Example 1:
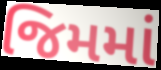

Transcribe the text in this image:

જિમમાં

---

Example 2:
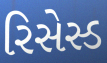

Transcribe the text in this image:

રિસેસ્ડ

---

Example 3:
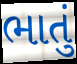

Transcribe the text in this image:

ભાતું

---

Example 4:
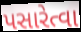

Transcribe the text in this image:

પસારેત્વા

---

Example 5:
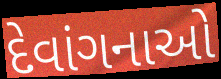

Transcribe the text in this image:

દેવાંગનાઓ